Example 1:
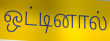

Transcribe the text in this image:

ஒட்டினால்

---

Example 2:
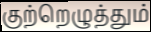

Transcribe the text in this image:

குற்றெழுத்தும்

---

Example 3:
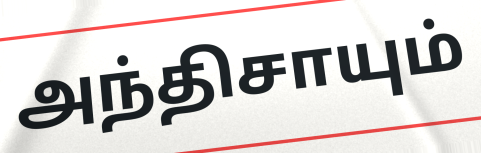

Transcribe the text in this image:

அந்திசாயும்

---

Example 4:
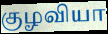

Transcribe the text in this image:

குழவியா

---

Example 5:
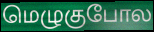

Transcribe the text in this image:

மெழுகுபோல